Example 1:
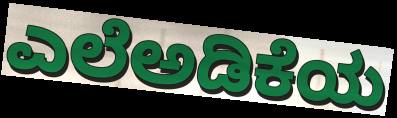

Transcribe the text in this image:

ಎಲೆಅಡಿಕೆಯ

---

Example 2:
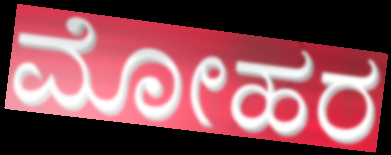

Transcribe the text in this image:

ಮೋಹರ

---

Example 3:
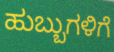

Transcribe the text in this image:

ಹುಬ್ಬುಗಳಿಗೆ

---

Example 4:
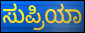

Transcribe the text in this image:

ಸುಪ್ರಿಯಾ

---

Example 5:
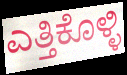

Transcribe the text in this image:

ಎತ್ತಿಕೊಳ್ಳಿ